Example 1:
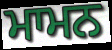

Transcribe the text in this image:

ਮਾਮਨ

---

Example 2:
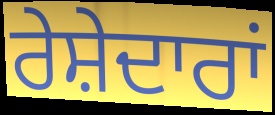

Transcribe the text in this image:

ਰੇਸ਼ੇਦਾਰਾਂ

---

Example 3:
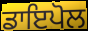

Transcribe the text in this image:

ਡਾਇਪੋਲ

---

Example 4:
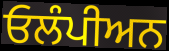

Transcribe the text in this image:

ਓਲੰਪੀਅਨ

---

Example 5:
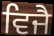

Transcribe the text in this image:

ਵਿਜੈ